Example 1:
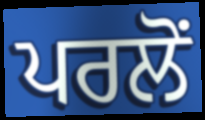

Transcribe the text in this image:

ਪਰਲੋਂ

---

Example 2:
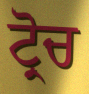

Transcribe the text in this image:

ਟ੍ਰੋਚ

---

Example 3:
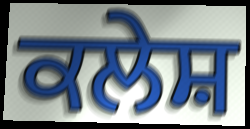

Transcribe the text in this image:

ਕਲੇਸ਼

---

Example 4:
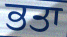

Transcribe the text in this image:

ਭਤਾ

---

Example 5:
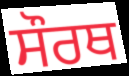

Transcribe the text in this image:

ਸੌਰਥ